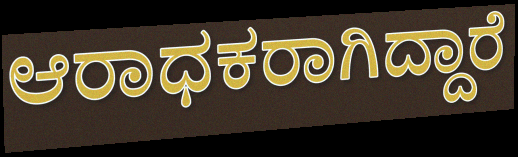
ಆರಾಧಕರಾಗಿದ್ದಾರೆ